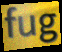
fug